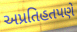
અપ્રતિહતપણે